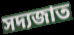
সদ্যজাত